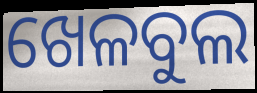
ଖେଳବୁଲ